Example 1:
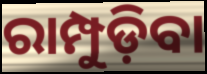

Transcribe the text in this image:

ରାମ୍ପୁଡ଼ିବା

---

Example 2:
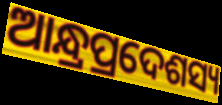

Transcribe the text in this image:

ଆନ୍ଧ୍ରପ୍ରଦେଶସ୍ୟ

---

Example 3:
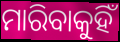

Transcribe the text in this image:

ମାରିବାକୁହିଁ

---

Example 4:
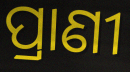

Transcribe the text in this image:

ପ୍ରାଣୀ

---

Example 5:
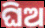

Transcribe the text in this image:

ଘିଅ